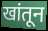
खांतून